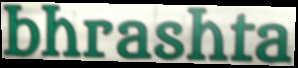
bhrashta